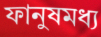
ফানুষমধ্য